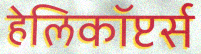
हेलिकॉप्टर्स